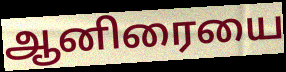
ஆனிரையை